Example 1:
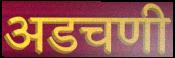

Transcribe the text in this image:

अडचणी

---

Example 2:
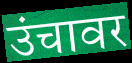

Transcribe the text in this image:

उंचावर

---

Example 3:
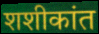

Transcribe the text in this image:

शशीकांत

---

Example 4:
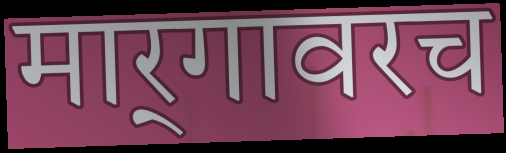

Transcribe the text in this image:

मार्गावरच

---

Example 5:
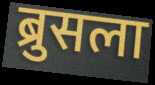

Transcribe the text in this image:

ब्रुसला